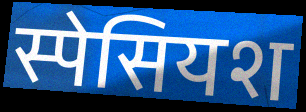
स्पेसियश